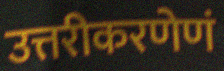
उत्तरीकरणेणं